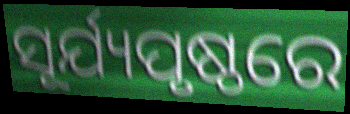
ସୂର୍ଯ୍ୟପୃଷ୍ଠରେ